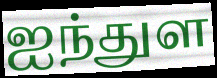
ஐந்துள